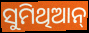
ସୁମିଥିଆନ୍